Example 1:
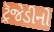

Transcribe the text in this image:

ટ્રૅજેડીનો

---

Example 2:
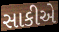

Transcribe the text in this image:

સાકીએ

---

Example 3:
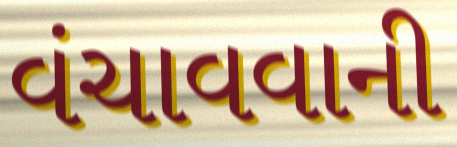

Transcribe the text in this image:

વંચાવવાની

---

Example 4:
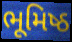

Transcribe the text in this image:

ભૂમિષ્ઠ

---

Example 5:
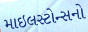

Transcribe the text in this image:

માઇલસ્ટોન્સનો